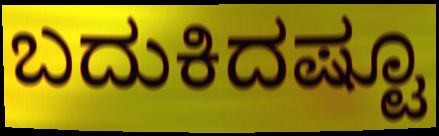
ಬದುಕಿದಷ್ಟೂ